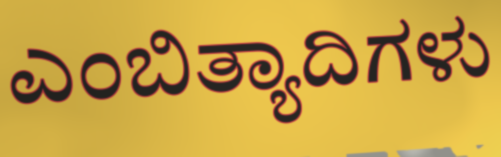
ಎಂಬಿತ್ಯಾದಿಗಳು